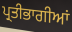
ਪ੍ਰਤੀਭਾਗੀਆਂ